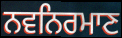
ਨਵਨਿਰਮਾਣ